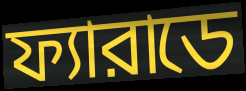
ফ্যারাডে